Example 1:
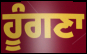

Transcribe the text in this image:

ਹੂੰਗਣਾ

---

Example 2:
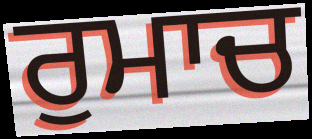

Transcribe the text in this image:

ਰੁਮਾਚ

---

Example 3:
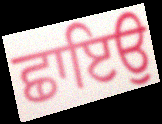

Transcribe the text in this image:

ਛਾਇਉ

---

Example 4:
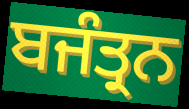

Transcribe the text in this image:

ਬਜੰਤ੍ਰਨ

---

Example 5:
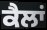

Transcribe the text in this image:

ਕੈਲਾਂ